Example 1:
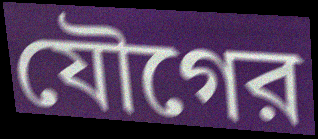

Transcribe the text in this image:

যৌগের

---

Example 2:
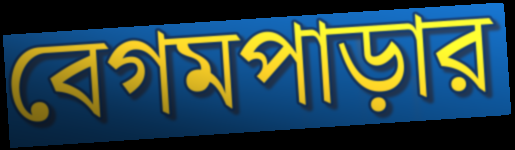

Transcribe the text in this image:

বেগমপাড়ার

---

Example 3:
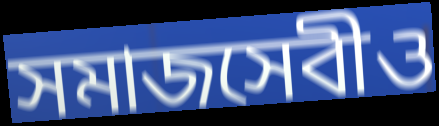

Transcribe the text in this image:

সমাজসেবীও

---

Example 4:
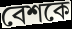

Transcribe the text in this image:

বেশকে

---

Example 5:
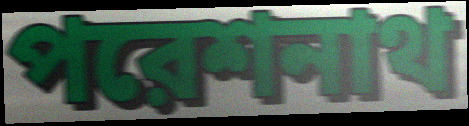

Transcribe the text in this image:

পরেশনাথ